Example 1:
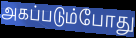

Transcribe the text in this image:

அகப்படும்போது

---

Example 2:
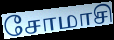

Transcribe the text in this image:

சோமாசி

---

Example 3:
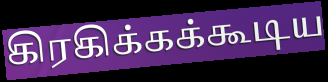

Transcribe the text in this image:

கிரகிக்கக்கூடிய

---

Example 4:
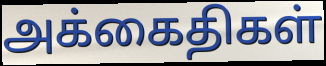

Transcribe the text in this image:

அக்கைதிகள்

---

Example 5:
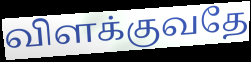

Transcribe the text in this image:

விளக்குவதே